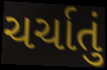
ચર્ચાતું